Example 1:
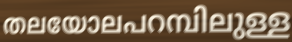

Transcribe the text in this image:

തലയോലപറമ്പിലുള്ള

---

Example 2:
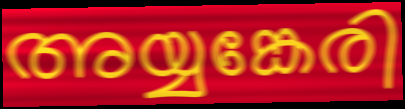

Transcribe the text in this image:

അയ്യങ്കേരി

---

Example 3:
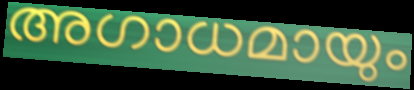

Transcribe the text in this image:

അഗാധമായും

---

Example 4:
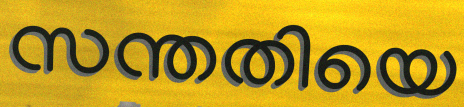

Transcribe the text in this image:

സന്തതിയെ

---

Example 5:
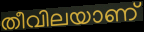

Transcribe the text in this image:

തീവിലയാണ്